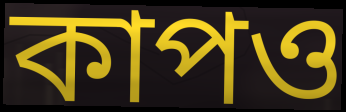
কাপও